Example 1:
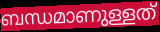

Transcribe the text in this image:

ബന്ധമാണുള്ളത്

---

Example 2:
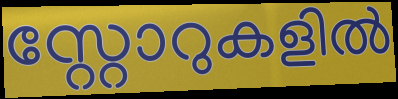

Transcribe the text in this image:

സ്റ്റോറുകളിൽ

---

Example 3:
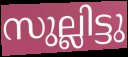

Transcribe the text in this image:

സുല്ലിട്ടു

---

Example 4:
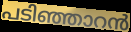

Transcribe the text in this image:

പടിഞ്ഞാറൻ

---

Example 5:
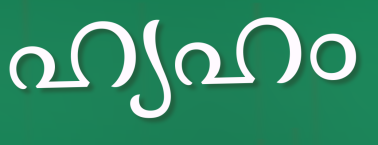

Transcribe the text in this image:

ഹ്യഹം